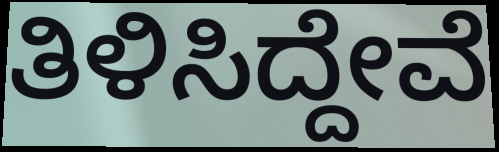
ತಿಳಿಸಿದ್ದೇವೆ